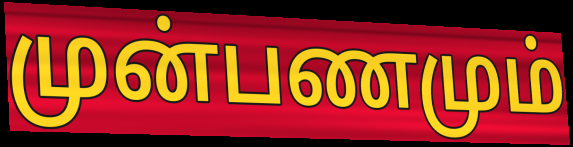
முன்பணமும்